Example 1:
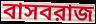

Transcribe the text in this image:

বাসবরাজ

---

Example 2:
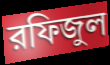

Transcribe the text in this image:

রফিজুল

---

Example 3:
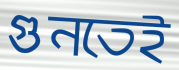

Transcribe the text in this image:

গুনতেই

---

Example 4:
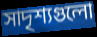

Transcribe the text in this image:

সাদৃশ্যগুলো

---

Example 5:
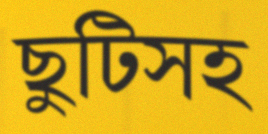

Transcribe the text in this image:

ছুটিসহ